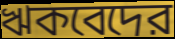
ঋকবেদের